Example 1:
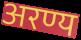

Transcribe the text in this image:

अरण्य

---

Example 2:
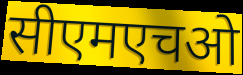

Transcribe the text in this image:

सीएमएचओ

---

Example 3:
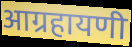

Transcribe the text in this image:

आग्रहायणी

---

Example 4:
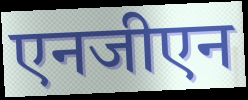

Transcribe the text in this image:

एनजीएन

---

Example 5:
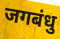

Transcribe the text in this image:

जगबंधु